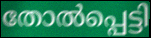
തോൽപ്പെട്ടി